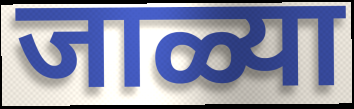
जाळ्या